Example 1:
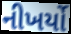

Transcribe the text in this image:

નીખર્યો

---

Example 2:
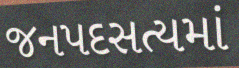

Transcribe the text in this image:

જનપદસત્યમાં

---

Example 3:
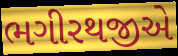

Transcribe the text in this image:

ભગીરથજીએ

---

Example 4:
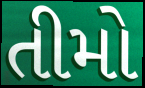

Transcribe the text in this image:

તીમો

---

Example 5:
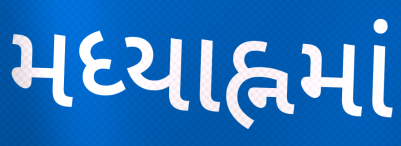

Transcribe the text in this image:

મધ્યાહ્નમાં